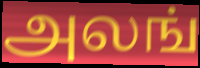
அலங்